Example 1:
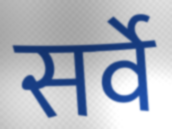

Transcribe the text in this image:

सर्वे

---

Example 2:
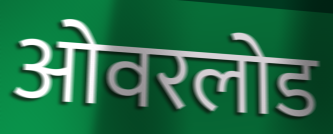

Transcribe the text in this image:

ओवरलोड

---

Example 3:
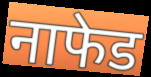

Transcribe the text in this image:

नाफेड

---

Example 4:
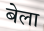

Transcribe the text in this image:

बेला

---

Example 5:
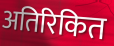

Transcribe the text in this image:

अतिरिकित